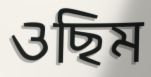
ওছিম